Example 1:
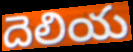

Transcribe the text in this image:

దెలియ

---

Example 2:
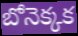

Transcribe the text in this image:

బోనెక్కక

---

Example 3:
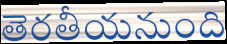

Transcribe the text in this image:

తెరతీయనుంది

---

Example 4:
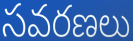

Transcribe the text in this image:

సవరణలు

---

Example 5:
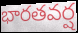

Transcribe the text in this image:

భారతవర్ష